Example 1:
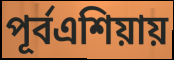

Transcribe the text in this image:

পূর্বএশিয়ায়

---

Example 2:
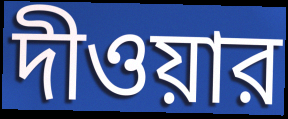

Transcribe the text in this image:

দীওয়ার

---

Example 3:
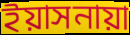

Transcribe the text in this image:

ইয়াসনায়া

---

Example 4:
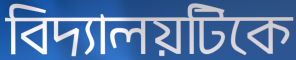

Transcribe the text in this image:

বিদ্যালয়টিকে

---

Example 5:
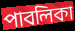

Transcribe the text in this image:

পাবলিকা